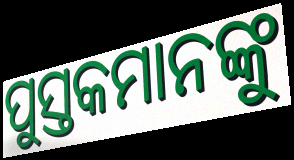
ପୁସ୍ତକମାନଙ୍କୁ